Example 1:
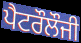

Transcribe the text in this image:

ਪੈਟਰੌਲੌਜੀ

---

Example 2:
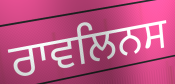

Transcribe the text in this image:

ਰਾਵਲਿਨਸ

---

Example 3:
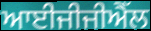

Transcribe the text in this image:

ਆਈਜੀਜੀਐੱਲ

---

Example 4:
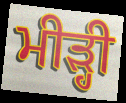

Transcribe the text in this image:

ਮੀੜ੍ਹੀ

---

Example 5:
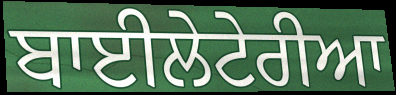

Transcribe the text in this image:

ਬਾਈਲੇਟੇਰੀਆ